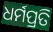
ଧର୍ମପ୍ରତି